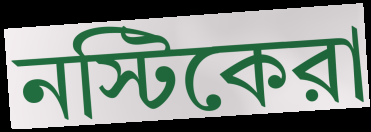
নস্টিকেরা